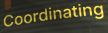
Coordinating